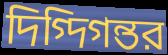
দিগ্দিগন্তর